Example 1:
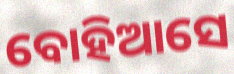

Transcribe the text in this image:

ବୋହିଆସେ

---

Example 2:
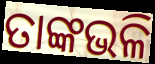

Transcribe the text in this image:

ତାଙ୍କଭଳି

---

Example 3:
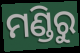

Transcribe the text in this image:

ମଣ୍ଡିରୁ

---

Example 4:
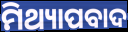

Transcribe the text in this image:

ମିଥ୍ୟାପବାଦ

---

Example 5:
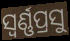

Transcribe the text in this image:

ସ୍ୱର୍ଣ୍ଣପ୍ରସୁ